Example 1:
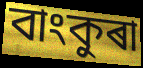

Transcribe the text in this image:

বাংকুৰা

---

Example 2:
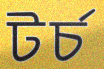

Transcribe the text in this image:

টৰ্চ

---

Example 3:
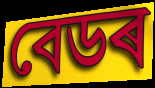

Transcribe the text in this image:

বেডৰ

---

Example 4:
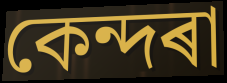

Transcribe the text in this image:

কেন্দৰা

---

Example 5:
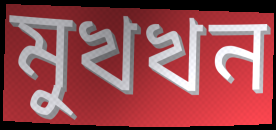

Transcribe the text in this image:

মুখখন